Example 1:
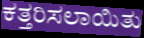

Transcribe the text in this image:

ಕತ್ತರಿಸಲಾಯಿತು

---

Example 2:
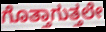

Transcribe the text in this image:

ಗೊತ್ತಾಗುತ್ತಲೇ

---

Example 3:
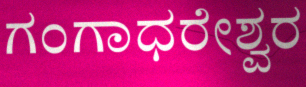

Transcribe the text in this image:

ಗಂಗಾಧರೇಶ್ವರ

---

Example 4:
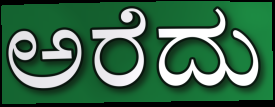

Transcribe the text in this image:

ಅರೆದು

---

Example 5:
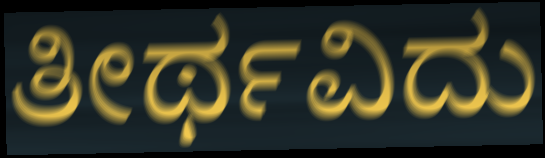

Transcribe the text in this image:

ತೀರ್ಥವಿದು